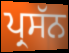
ਪ੍ਰਸੱਨ